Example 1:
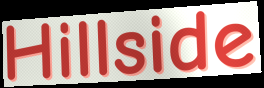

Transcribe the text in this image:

Hillside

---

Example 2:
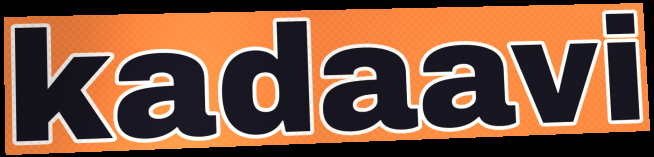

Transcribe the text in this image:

kadaavi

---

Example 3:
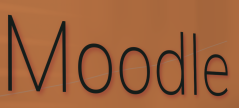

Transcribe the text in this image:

Moodle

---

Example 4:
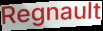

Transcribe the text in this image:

Regnault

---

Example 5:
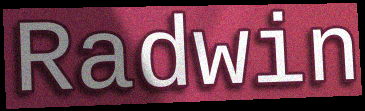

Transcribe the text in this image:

Radwin